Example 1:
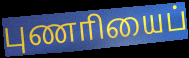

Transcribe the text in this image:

புணரியைப்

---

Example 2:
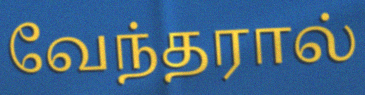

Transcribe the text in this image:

வேந்தரால்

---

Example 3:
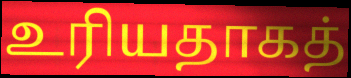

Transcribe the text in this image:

உரியதாகத்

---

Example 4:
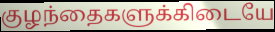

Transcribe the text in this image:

குழந்தைகளுக்கிடையே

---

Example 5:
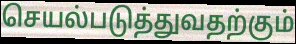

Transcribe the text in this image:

செயல்படுத்துவதற்கும்